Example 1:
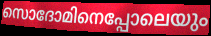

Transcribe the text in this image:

സൊദോമിനെപ്പോലെയും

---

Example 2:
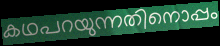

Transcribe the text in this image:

കഥപറയുന്നതിനൊപ്പം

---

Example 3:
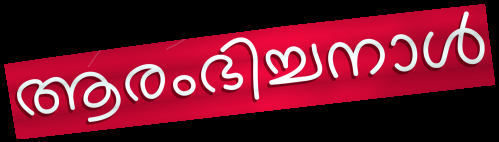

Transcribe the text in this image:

ആരംഭിച്ചനാൾ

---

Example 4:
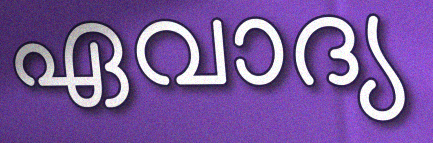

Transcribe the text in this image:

ഏവാദ്യ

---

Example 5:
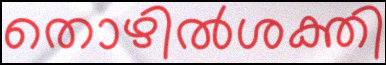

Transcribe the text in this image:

തൊഴിൽശക്തി